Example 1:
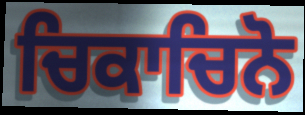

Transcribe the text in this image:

ਚਿਕਾਚਿਨੋ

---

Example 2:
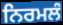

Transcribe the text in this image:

ਨਿਰਮਲੰ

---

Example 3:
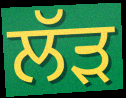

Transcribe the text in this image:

ਲੱੜ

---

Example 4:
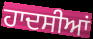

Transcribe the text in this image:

ਹਾਦਸੀਆਂ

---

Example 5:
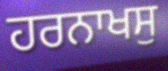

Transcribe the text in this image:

ਹਰਨਾਖਸੁ